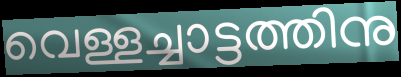
വെള്ളച്ചാട്ടത്തിനു